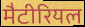
मैटीरियल